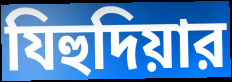
যিহুদিয়ার